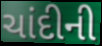
ચાંદીની